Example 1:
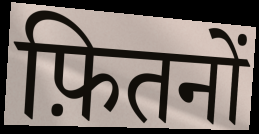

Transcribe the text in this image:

फ़ितनों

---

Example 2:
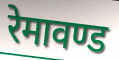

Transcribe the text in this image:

रेमावण्ड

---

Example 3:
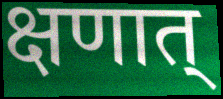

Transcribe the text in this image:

क्षणात्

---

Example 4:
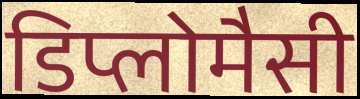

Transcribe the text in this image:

डिप्लोमैसी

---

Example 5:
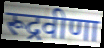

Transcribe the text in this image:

रूद्रवीणा